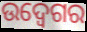
ଉଦ୍ବେଗର